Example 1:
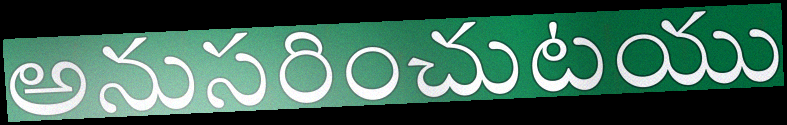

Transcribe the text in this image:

అనుసరించుటయు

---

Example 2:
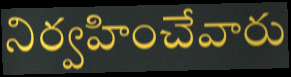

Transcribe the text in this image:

నిర్వహించేవారు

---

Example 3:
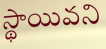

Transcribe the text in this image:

స్థాయివని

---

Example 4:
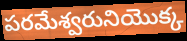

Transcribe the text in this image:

పరమేశ్వరునియొక్క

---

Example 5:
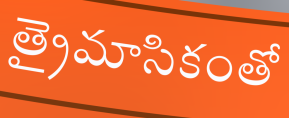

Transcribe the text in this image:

త్రైమాసికంతో